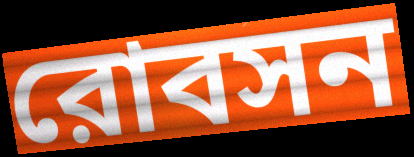
রোবসন